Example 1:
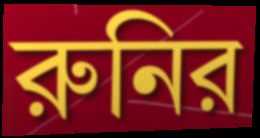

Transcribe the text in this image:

রুনির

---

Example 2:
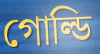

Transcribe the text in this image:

গোল্ডি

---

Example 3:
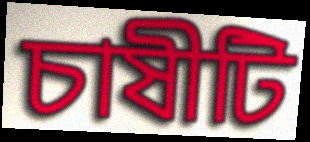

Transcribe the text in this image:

চাষীটি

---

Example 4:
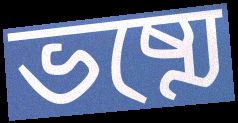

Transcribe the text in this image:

ভষ্মে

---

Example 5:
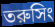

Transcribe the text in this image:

তরুসিং